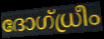
ദോഗ്ധ്രീം